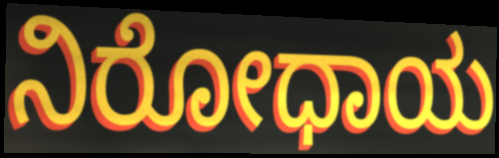
ನಿರೋಧಾಯ